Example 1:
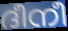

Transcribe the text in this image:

ദീനീ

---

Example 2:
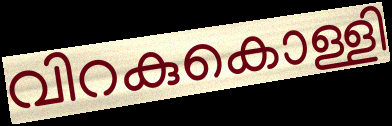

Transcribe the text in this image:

വിറകുകൊള്ളി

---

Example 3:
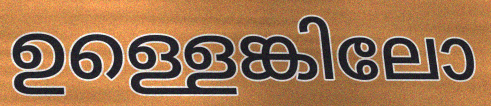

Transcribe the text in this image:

ഉള്ളെങ്കിലോ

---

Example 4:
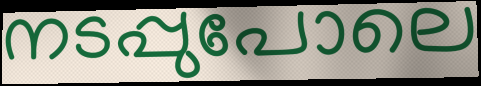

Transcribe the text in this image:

നടപ്പുപോലെ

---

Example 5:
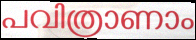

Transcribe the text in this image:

പവിത്രാണാം